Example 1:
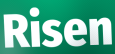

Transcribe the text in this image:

Risen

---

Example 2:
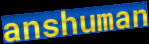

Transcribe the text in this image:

anshuman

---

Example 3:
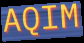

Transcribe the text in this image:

AQIM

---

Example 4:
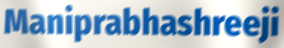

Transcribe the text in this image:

Maniprabhashreeji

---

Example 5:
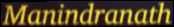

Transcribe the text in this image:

Manindranath